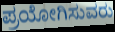
ಪ್ರಯೋಗಿಸುವರು